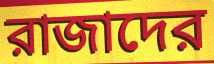
রাজাদের